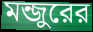
মন্জুরের